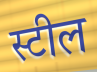
स्टील